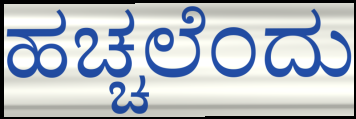
ಹಚ್ಚಲೆಂದು